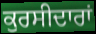
ਕੁਰਸੀਦਾਰਾਂ